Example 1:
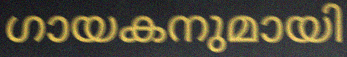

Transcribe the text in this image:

ഗായകനുമായി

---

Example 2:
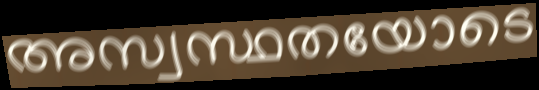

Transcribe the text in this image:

അസ്വസ്ഥതയോടെ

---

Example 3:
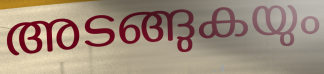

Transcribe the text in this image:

അടങ്ങുകയും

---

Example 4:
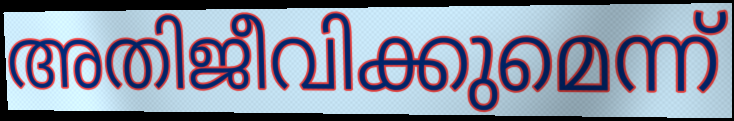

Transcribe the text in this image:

അതിജീവിക്കുമെന്ന്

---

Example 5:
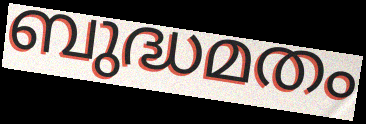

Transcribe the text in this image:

ബുദ്ധമതം